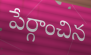
పేర్గాంచిన